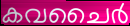
കവചൈർ